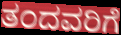
ತಂದವರಿಗೆ